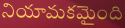
నియామకమైంది